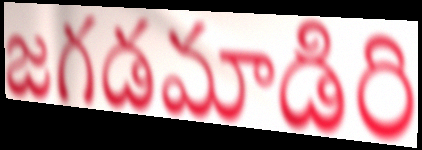
జగడమాడిరి